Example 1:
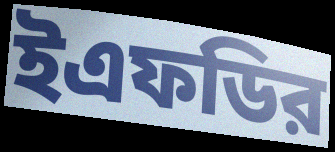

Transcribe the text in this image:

ইএফডির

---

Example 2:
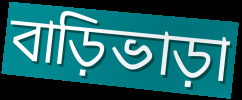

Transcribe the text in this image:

বাড়িভাড়া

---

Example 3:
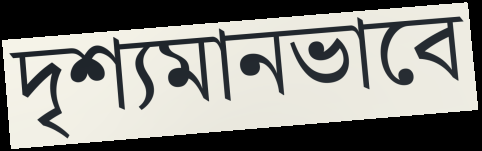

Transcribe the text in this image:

দৃশ্যমানভাবে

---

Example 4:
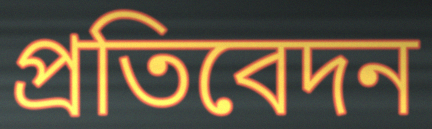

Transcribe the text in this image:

প্রতিবেদন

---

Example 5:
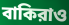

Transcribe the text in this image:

বাকিরাও